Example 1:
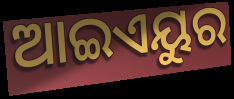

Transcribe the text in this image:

ଆଇଏୟୁର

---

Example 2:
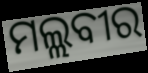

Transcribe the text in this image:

ମଲ୍ଲବୀର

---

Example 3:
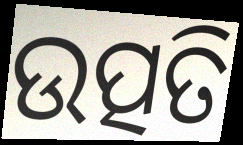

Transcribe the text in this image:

ଉତ୍ପତି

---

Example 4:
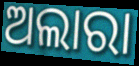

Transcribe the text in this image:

ଅଲାରା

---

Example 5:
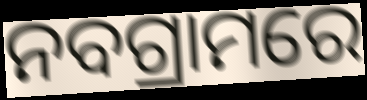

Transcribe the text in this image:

ନବଗ୍ରାମରେ